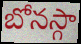
బోనస్గా